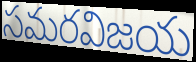
సమరవిజయ